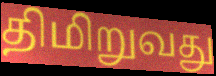
திமிறுவது